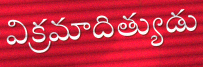
విక్రమాదిత్యుడు